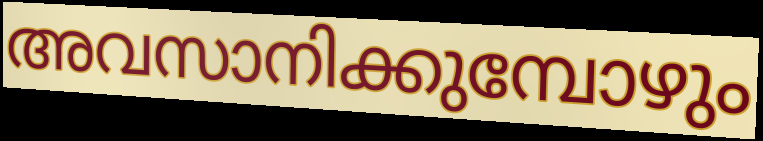
അവസാനിക്കുമ്പോഴും